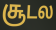
சூடல